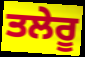
ਤਲੇਰੂ